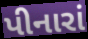
પીનારાં